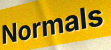
Normals